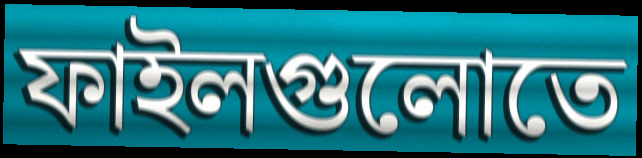
ফাইলগুলোতে